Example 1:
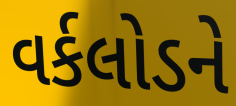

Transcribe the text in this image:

વર્કલોડને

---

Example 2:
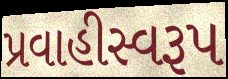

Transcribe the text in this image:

પ્રવાહીસ્વરૂપ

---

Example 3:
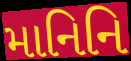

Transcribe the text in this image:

માનિનિ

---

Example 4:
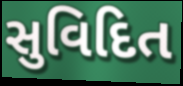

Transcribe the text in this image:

સુવિદિત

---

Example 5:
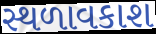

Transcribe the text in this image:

સ્થળાવકાશ